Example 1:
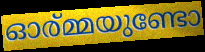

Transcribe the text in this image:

ഓര്മ്മയുണ്ടോ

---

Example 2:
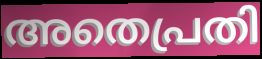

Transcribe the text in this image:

അതെപ്രതി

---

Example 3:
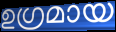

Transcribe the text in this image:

ഉഗ്രമായ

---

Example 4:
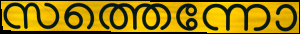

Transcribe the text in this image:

സത്തെന്നോ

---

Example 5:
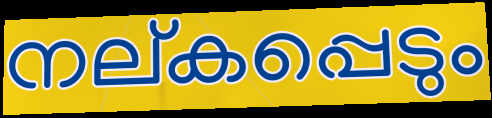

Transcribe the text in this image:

നല്കപ്പെടും